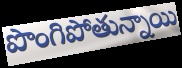
పొంగిపోతున్నాయి